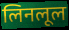
लिनलूल